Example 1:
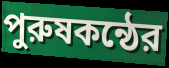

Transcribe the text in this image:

পুরুষকন্ঠের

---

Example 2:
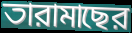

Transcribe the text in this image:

তারামাছের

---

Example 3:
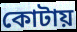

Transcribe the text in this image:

কোটায়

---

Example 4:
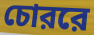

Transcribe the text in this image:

চোররে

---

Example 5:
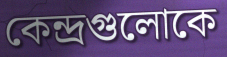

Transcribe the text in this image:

কেন্দ্রগুলোকে